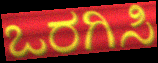
ಒರಗಿಸಿ